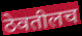
ठेवतीलच